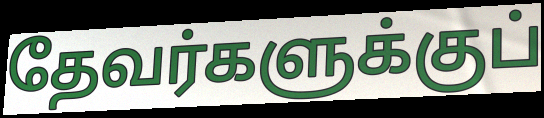
தேவர்களுக்குப்